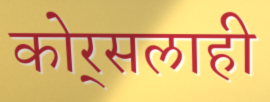
कोर्सलाही